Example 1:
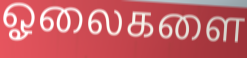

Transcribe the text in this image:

ஓலைகளை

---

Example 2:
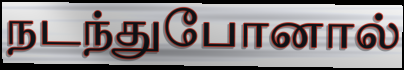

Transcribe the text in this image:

நடந்துபோனால்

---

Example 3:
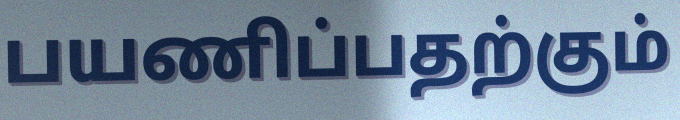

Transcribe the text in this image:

பயணிப்பதற்கும்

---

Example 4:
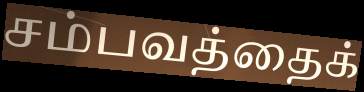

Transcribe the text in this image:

சம்பவத்தைக்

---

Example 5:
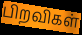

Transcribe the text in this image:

பிறவிகள்